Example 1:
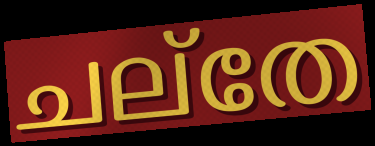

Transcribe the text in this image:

ചല്തേ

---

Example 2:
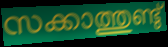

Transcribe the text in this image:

സക്കാത്തുണ്ടു്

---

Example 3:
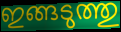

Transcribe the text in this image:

ഇങ്ങടുത്തു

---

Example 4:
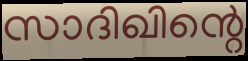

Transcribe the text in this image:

സാദിഖിന്റെ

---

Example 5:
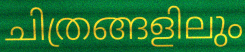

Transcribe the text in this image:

ചിത്രങ്ങളിലും